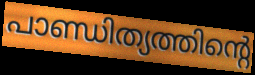
പാണ്ഡിത്യത്തിന്റെ